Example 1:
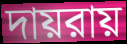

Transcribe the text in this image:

দায়রায়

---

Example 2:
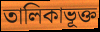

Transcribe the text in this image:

তালিকাভূক্ত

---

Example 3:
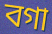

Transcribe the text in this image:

বগা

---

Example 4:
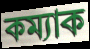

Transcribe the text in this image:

কম্যাক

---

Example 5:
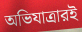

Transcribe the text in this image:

অভিযাত্রারই